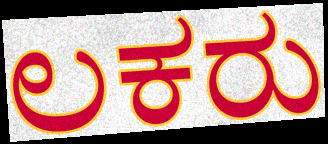
ಲಕರು